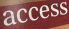
access